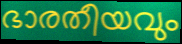
ഭാരതീയവും